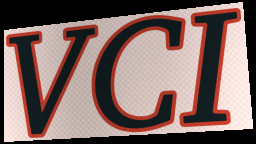
VCI